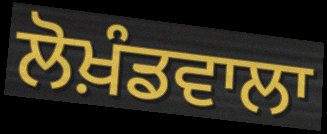
ਲੋਖ਼ੰਡਵਾਲਾ